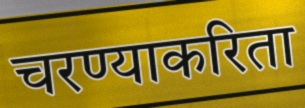
चरण्याकरिता